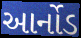
આર્નોડ